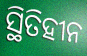
ସ୍ଥିତିହୀନ